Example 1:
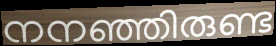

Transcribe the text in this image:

നനഞ്ഞിരുണ്ട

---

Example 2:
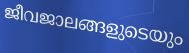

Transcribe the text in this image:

ജീവജാലങ്ങളുടെയും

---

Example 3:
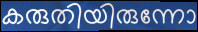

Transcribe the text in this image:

കരുതിയിരുന്നോ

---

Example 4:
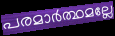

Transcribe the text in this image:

പരമാർത്ഥമല്ലേ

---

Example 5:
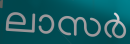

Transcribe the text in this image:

ലാസർ